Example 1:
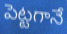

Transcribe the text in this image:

పెట్టగానే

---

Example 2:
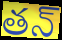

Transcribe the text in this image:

తన్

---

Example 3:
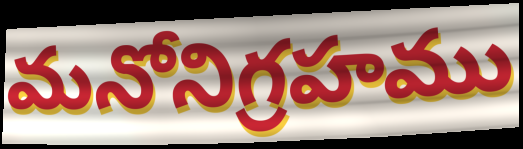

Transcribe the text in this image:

మనోనిగ్రహము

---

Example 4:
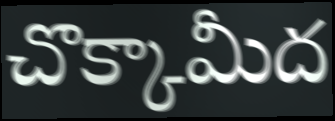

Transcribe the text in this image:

చొక్కామీద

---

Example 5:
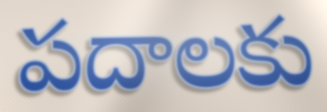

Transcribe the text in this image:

పదాలకు